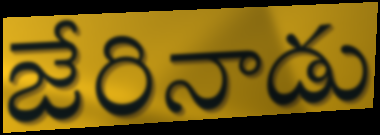
జేరినాడు